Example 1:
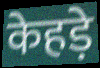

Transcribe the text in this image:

केहड़े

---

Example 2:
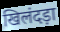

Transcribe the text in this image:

खिलंदड़ा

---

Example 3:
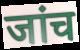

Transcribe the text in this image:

जांच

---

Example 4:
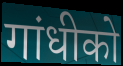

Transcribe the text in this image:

गांधीको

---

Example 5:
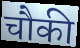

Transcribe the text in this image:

चौकी